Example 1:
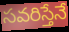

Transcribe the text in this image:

సవరిస్తేనే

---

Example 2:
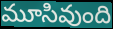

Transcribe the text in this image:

మూసివుంది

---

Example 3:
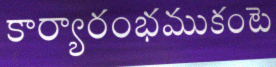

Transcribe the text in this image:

కార్యారంభముకంటె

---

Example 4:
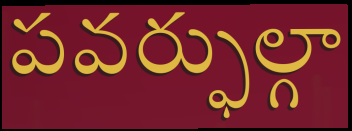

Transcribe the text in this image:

పవర్ఫుల్గా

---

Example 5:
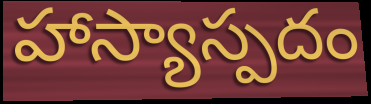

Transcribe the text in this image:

హాస్యాస్పదం